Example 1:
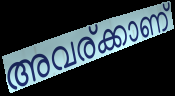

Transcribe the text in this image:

അവര്ക്കാണ്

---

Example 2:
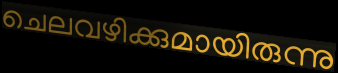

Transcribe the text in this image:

ചെലവഴിക്കുമായിരുന്നു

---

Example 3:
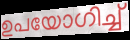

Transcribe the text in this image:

ഉപയോഗിച്ച്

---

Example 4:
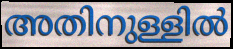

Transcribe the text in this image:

അതിനുള്ളിൽ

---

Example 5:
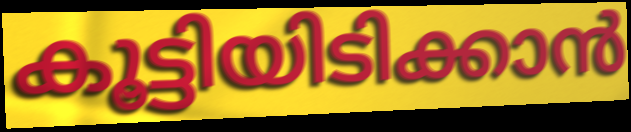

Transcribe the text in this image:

കൂട്ടിയിടിക്കാൻ